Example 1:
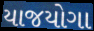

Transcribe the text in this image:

યાજયોગા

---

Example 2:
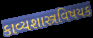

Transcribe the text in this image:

કાવ્યશાસ્ત્રવિષયક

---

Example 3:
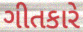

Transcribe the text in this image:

ગીતકારે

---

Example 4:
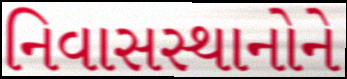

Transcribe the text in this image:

નિવાસસ્થાનોને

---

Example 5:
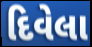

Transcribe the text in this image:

દિવેલા